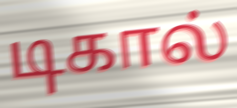
டிகால்